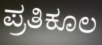
ಪ್ರತಿಕೂಲ